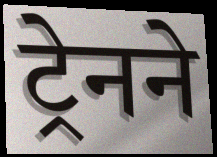
ट्रेनने